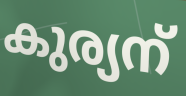
കുര്യന്